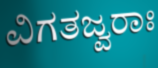
ವಿಗತಜ್ವರಾಃ